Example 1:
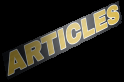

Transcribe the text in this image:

ARTICLES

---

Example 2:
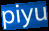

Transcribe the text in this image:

piyu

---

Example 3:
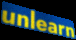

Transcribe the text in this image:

unlearn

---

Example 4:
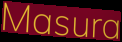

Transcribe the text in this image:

Masura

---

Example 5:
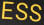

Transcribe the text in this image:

ESS